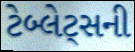
ટેબ્લેટ્સની